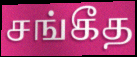
சங்கீத